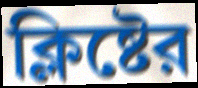
ক্লিষ্টের